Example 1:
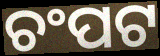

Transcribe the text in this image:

ଚଂପଟ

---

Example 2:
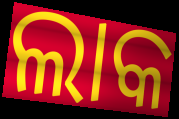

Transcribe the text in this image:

ଲାକ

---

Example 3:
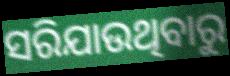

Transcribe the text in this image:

ସରିଯାଉଥିବାରୁ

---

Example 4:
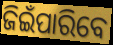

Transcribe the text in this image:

ଜିଇଁପାରିବେ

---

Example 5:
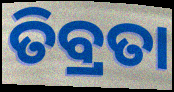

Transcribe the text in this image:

ତିବ୍ରତା